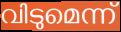
വിടുമെന്ന്